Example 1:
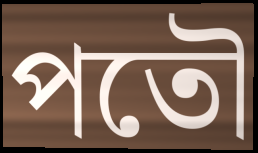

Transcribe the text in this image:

পতৌ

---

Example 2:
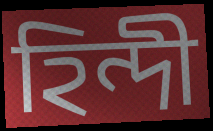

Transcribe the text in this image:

হিন্দী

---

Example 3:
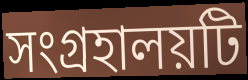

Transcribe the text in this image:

সংগ্রহালয়টি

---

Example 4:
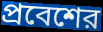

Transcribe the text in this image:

প্রবেশের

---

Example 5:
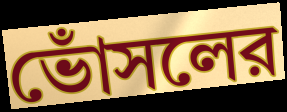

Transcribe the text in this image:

ভোঁসলের